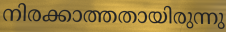
നിരക്കാത്തതായിരുന്നു